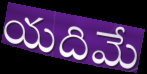
యదిమే